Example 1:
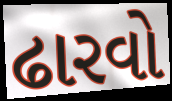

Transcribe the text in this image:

ઢારવો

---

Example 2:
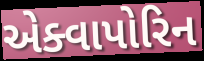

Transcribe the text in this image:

એક્વાપોરિન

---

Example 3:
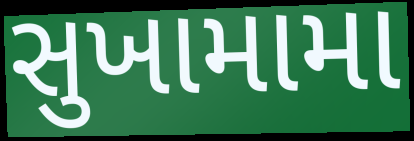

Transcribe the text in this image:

સુખામામા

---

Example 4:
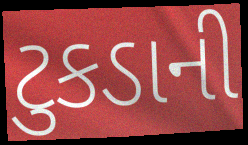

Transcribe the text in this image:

ટુકડાની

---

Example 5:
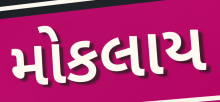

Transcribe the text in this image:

મોકલાય